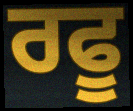
ਰਫੂ